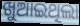
ଖୁଆଇଥିଲା